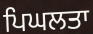
ਪਿਘਲਤਾ